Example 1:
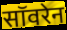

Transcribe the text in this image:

सॉवरेन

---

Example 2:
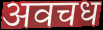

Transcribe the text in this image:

अवचध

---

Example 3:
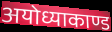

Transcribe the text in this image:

अयोध्याकाण्ड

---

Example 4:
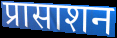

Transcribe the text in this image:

प्रासाशन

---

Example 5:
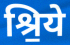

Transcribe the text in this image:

श्रि॒ये